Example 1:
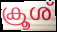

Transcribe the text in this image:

ക്രൂശ്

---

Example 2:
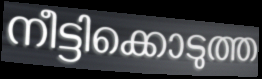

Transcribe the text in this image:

നീട്ടിക്കൊടുത്ത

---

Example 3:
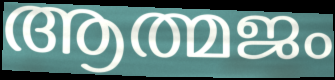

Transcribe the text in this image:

ആത്മജം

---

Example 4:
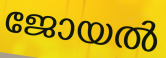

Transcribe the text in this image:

ജോയൽ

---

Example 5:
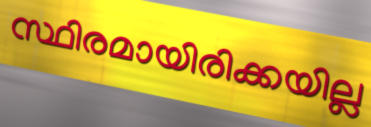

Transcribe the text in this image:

സ്ഥിരമായിരിക്കയില്ല